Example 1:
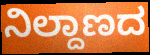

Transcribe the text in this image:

ನಿಲ್ದಾಣದ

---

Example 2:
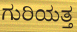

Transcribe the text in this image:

ಗುರಿಯತ್ತ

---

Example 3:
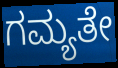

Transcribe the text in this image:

ಗಮ್ಯತೇ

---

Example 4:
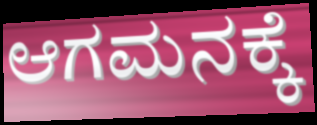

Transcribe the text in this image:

ಆಗಮನಕ್ಕೆ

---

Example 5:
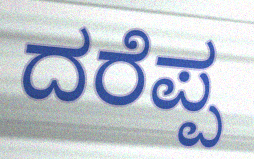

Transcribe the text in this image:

ದರೆಪ್ಪ